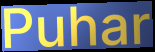
Puhar